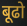
बूढो